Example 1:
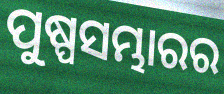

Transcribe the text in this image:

ପୁଷ୍ପସମ୍ଭାରର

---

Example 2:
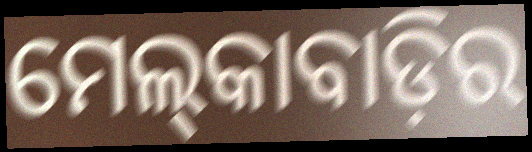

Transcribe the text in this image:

ମେଲ୍‍କାବାଡ଼ିର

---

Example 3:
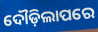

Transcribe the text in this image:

ଦୌଡ଼ିଲାପରେ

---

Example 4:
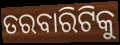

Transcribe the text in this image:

ତରବାରିଟିକୁ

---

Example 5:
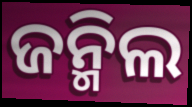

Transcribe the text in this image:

ଜନ୍ମିଲ